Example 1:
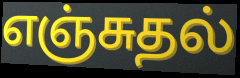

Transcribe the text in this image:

எஞ்சுதல்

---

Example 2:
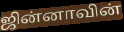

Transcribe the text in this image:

ஜின்னாவின்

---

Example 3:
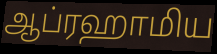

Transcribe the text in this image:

ஆப்ரஹாமிய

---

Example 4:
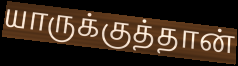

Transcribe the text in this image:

யாருக்குத்தான்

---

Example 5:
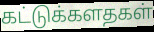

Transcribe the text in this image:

கட்டுக்களதகள்